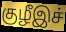
குழீஇச்